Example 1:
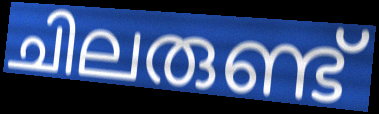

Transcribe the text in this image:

ചിലരുണ്ട്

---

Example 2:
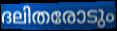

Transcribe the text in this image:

ദലിതരോടും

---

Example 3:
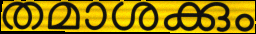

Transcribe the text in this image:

തമാശക്കും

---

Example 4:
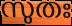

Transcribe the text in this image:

സുതഃ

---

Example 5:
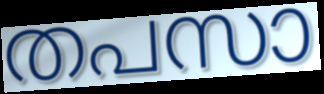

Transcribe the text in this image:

തപസാ